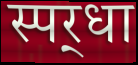
स्पर्धा